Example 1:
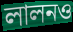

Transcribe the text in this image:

লালনও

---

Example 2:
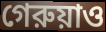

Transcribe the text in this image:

গেরুয়াও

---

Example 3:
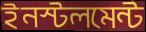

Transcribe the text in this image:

ইনস্টলমেন্ট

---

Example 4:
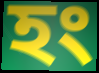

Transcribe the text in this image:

হং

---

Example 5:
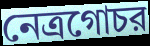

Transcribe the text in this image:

নেত্রগোচর